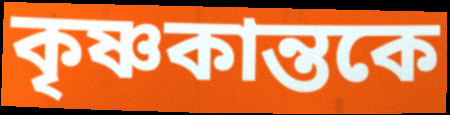
কৃষ্ণকান্তকে